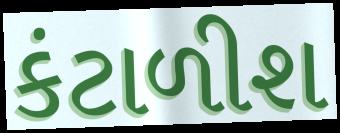
કંટાળીશ